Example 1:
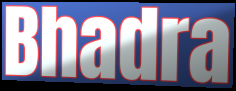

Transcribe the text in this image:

Bhadra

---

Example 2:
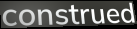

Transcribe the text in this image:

construed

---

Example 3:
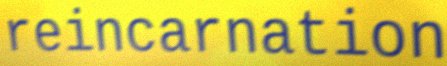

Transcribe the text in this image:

reincarnation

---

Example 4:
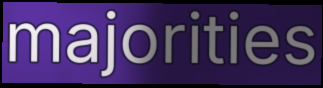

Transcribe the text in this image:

majorities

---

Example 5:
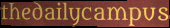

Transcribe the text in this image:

thedailycampus